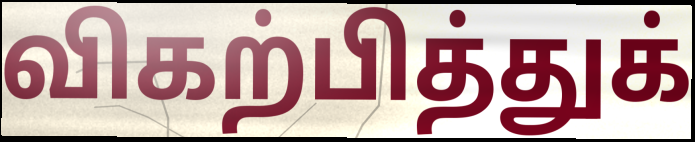
விகற்பித்துக்